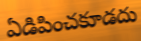
ఏడిపించకూడదు